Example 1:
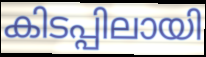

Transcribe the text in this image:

കിടപ്പിലായി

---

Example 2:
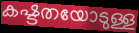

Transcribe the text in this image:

കഷ്ടതയോടുള്ള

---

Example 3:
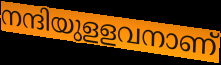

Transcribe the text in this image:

നന്ദിയുളളവനാണ്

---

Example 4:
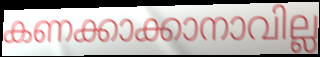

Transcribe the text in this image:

കണക്കാക്കാനാവില്ല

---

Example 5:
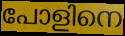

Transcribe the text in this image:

പോളിനെ